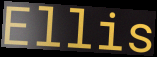
Ellis